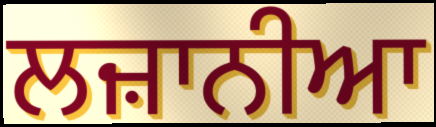
ਲਜ਼ਾਨੀਆ